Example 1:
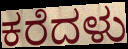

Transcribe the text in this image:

ಕರೆದಳು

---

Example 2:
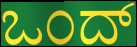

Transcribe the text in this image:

ಒಂದ್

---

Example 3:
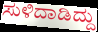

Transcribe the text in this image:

ಸುಳಿದಾಡಿದ್ದು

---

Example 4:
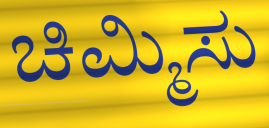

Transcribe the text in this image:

ಚಿಮ್ಮಿಸು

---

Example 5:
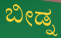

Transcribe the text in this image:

ಬೀಡ್ನ